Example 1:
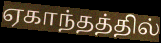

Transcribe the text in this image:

ஏகாந்தத்தில்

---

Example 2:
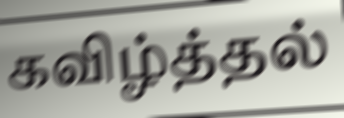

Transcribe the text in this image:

கவிழ்த்தல்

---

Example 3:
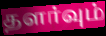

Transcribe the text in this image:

தளர்வும்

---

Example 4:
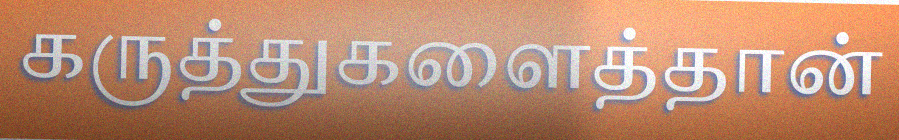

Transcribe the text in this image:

கருத்துகளைத்தான்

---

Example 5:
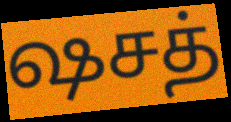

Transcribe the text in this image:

ஷசத்